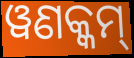
ୱଣକ୍କମ୍